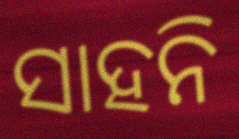
ସାହନି